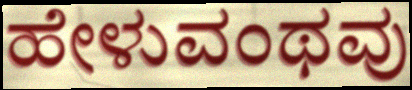
ಹೇಳುವಂಥವು